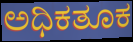
ಅಧಿಕತೂಕ